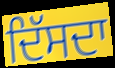
ਦਿੱਸਦਾ